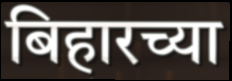
बिहारच्या